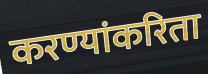
करण्यांकरिता